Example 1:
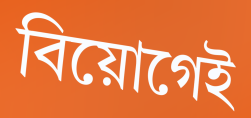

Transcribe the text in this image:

বিয়োগেই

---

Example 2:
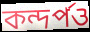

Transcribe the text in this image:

কন্দর্পও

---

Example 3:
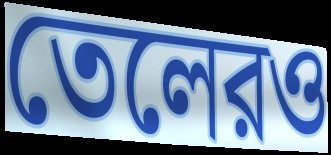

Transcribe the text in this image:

তেলেরও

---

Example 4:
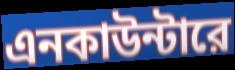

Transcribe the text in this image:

এনকাউন্টারে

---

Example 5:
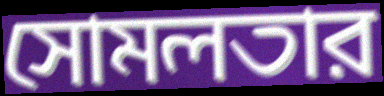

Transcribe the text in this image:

সোমলতার